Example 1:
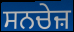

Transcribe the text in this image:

ਸਨਚੇਜ਼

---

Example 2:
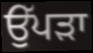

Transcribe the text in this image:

ਉੱਪੜਾ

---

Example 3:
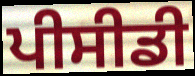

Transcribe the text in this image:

ਪੀਸੀਡੀ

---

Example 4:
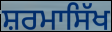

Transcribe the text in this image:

ਸ਼ਰਮਾਸਿੱਖ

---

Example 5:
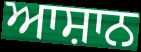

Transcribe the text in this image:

ਆਸ਼ਾਨ